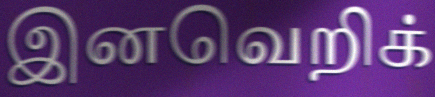
இனவெறிக்